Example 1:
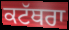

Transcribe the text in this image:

ਕਟੱਥਰਾ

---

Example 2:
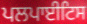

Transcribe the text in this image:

ਪਲਪਾਈਟਿਸ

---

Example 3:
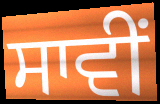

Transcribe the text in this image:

ਸਾਵੀਂ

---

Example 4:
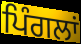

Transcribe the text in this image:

ਪਿੰਗਲਾਂ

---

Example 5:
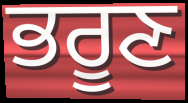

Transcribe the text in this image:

ਭਰੂਣ